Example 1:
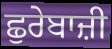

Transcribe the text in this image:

ਛੁਰੇਬਾਜ਼ੀ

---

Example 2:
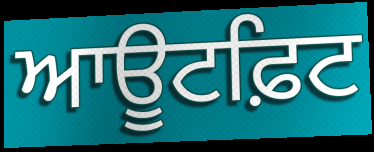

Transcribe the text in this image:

ਆਊਟਫ਼ਿਟ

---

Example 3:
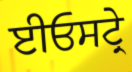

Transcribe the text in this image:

ਈਓਸਟ੍ਰੇ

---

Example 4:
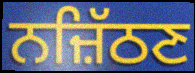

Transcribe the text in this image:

ਨਜ਼ਿੱਠਣ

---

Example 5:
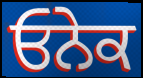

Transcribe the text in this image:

ਓਨੇਕ